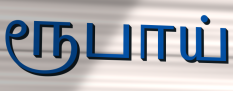
ரூபாய்